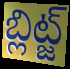
బ్లిట్జ్